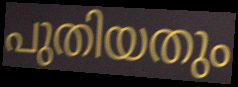
പുതിയതും